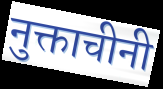
नुक्ताचीनी